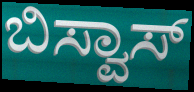
ಬಿಸ್ವಾಸ್